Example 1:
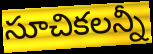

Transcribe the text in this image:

సూచికలన్నీ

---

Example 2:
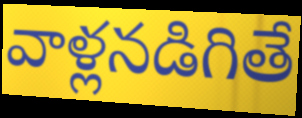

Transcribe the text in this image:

వాళ్లనడిగితే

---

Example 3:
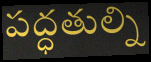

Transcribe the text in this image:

పద్ధతుల్ని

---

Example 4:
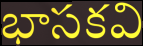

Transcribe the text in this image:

భాసకవి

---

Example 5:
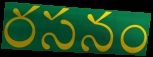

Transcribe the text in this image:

రసనం